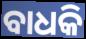
ବାଧକି